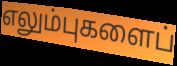
எலும்புகளைப்